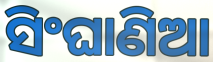
ସିଂଘାଣିଆ